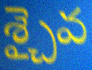
శ్చైవ